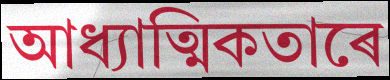
আধ্যাত্মিকতাৰে